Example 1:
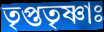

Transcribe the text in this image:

তৃপ্ততৃষ্ণাঃ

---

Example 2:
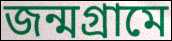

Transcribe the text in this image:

জন্মগ্রামে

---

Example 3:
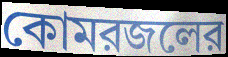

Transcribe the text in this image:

কোমরজলের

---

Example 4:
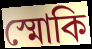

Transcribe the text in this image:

স্মোকি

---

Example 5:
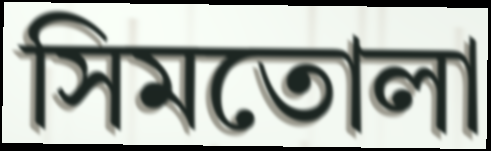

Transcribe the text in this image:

সিমতোলা